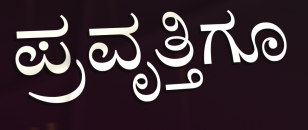
ಪ್ರವೃತ್ತಿಗೂ